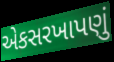
એકસરખાપણું